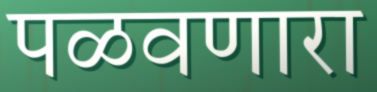
पळवणारा